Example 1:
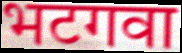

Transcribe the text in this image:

भटगवा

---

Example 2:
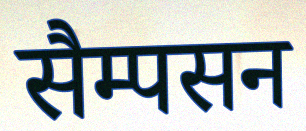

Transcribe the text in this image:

सैम्पसन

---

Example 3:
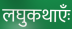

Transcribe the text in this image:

लघुकथाएँः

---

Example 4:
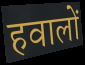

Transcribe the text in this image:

हवालों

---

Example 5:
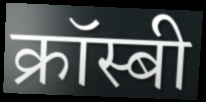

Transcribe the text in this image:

क्रॉस्बी